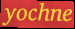
yochne